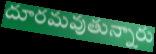
దూరమవుతున్నారు